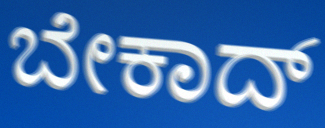
ಬೇಕಾದ್